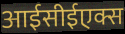
आईसीईएक्स